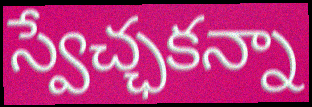
స్వేచ్ఛకన్నా